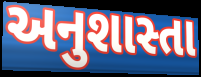
અનુશાસ્તા